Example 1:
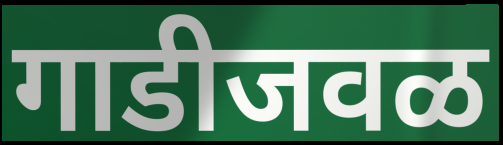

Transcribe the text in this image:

गाडीजवळ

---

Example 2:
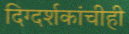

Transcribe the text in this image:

दिग्दर्शकांचीही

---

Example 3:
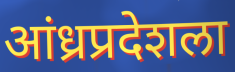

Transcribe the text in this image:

आंध्रप्रदेशला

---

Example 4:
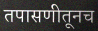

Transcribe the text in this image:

तपासणीतूनच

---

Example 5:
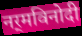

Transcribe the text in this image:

नर्मविनोदी